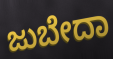
ಜುಬೇದಾ